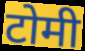
टोमी